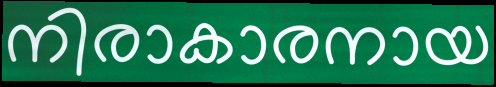
നിരാകാരനായ